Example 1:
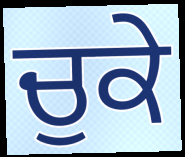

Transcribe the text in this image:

ਚੁਕੇ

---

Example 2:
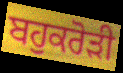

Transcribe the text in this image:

ਬਹੁਕਰੋੜੀ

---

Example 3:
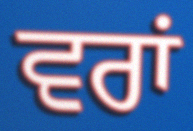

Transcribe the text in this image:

ਵਰਾਂ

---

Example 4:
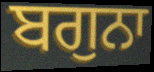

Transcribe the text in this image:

ਬਗੁਨਾ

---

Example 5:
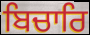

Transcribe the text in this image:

ਬਿਚਾਰਿ